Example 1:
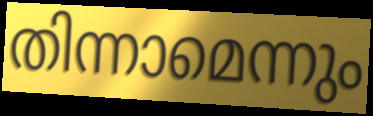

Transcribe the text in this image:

തിന്നാമെന്നും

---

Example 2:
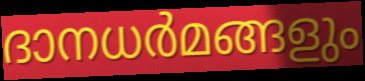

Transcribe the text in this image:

ദാനധർമങ്ങളും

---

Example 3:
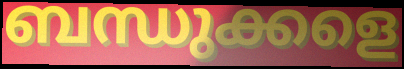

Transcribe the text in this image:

ബന്ധുക്കളെ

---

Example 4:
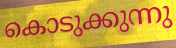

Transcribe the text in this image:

കൊടുക്കുന്നു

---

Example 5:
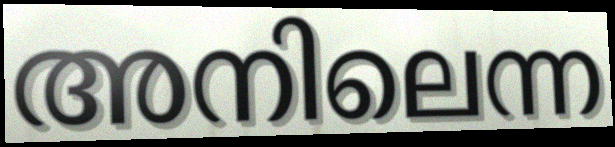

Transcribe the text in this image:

അനിലെന്ന